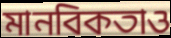
মানবিকতাও